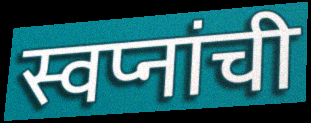
स्वप्नांची